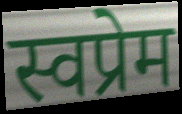
स्वप्रेम